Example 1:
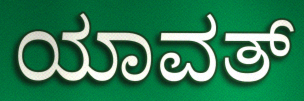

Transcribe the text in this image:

ಯಾವತ್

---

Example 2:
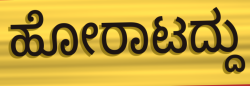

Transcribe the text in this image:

ಹೋರಾಟದ್ದು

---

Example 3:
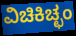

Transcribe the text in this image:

ವಿಚಿಕಿಚ್ಛಂ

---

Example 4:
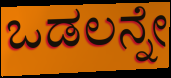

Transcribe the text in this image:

ಒಡಲನ್ನೇ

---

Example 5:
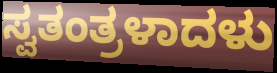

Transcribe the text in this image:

ಸ್ವತಂತ್ರಳಾದಳು